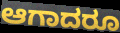
ಆಗಾದರೂ